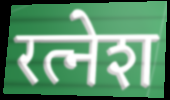
रत्नेश